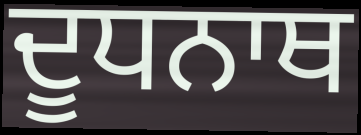
ਦੂਧਨਾਥ